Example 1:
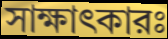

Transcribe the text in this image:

সাক্ষাৎকারঃ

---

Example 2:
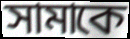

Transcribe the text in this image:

সামাকে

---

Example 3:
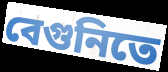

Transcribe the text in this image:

বেগুনিতে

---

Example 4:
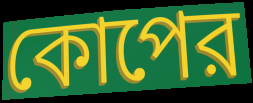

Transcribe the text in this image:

কোপের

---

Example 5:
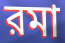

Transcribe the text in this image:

রমা